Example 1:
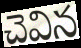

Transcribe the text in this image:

చెవిన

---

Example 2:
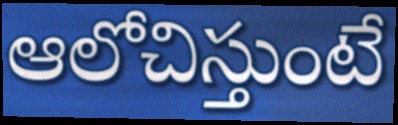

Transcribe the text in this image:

ఆలోచిస్తుంటే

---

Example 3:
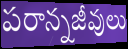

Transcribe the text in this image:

పరాన్నజీవులు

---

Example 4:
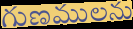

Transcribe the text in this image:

గుణములను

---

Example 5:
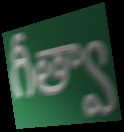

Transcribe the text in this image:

గీత్వా